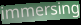
immersing